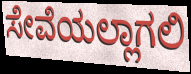
ಸೇವೆಯಲ್ಲಾಗಲಿ